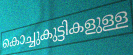
കൊച്ചുകുട്ടികളുള്ള